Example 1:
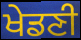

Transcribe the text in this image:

ਖੇਡਣੀ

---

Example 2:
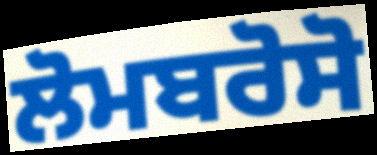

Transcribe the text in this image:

ਲੋਮਬਰੋਸੋ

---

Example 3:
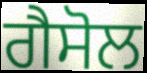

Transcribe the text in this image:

ਗੈਸੋਲ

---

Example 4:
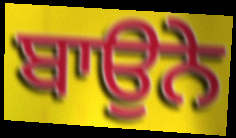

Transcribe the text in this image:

ਬਾਉਨੇ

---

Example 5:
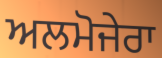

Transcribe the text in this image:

ਅਲਮੋਜੇਰਾ